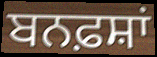
ਬਨਫ਼ਸ਼ਾਂ